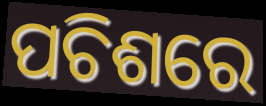
ପଚିଶରେ